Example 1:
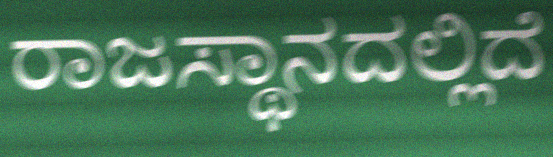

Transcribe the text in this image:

ರಾಜಸ್ಥಾನದಲ್ಲಿದೆ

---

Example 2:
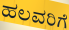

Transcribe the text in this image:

ಹಲವರಿಗೆ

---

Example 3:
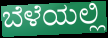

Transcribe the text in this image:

ಬೆಳೆಯಲ್ಲಿ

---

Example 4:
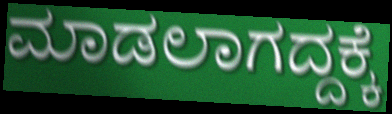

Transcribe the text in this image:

ಮಾಡಲಾಗದ್ದಕ್ಕೆ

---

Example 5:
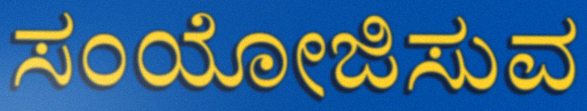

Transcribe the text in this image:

ಸಂಯೋಜಿಸುವ